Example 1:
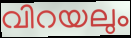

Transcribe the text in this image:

വിറയലും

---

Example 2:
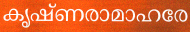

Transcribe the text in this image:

കൃഷ്ണരാമാഹരേ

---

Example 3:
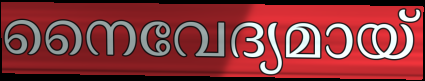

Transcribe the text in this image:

നൈവേദ്യമായ്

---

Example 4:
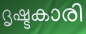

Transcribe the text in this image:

ദൃഷ്ടകാരി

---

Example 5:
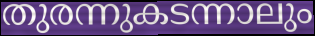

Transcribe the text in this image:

തുരന്നുകടന്നാലും